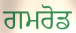
ਗਮਰੋਡ